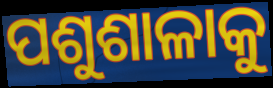
ପଶୁଶାଳାକୁ